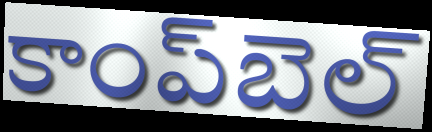
కాంప్‌బెల్